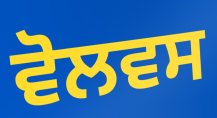
ਵੋਲਵਸ